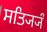
ਸਤ੍ਯ੍ਯਿੰ